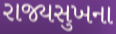
રાજ્યસુખના